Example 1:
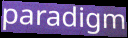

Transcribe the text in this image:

paradigm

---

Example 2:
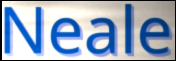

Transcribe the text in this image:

Neale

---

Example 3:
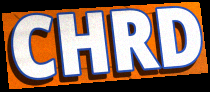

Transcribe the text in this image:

CHRD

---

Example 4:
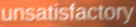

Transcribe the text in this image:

unsatisfactory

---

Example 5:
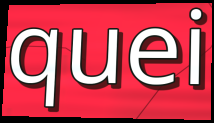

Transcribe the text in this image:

quei